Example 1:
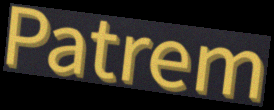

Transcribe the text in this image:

Patrem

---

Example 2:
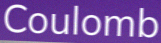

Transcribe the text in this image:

Coulomb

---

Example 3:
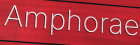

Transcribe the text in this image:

Amphorae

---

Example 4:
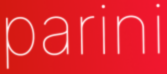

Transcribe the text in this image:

parini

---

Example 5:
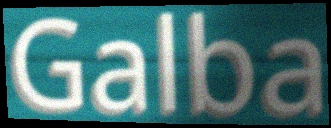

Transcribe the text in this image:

Galba